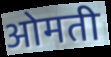
ओमती